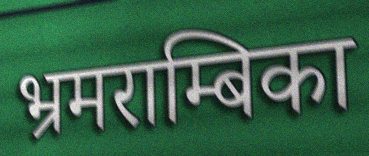
भ्रमराम्बिका